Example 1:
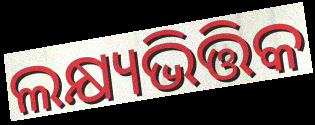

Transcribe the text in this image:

ଲକ୍ଷ୍ୟଭିତ୍ତିକ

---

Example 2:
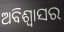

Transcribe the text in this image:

ଅବିଶ୍ବାସର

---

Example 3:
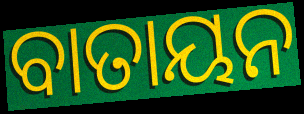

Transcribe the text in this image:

ବାତାୟନ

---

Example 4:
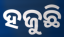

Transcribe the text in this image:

ହଜୁଛି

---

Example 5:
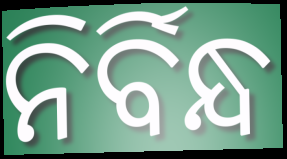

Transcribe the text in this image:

ନିର୍ବିନ୍ଧ